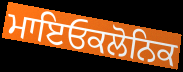
ਮਾਇਓਕਲੋਨਿਕ